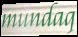
mundaq